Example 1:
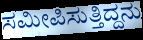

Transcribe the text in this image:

ಸಮೀಪಿಸುತ್ತಿದ್ದನು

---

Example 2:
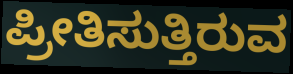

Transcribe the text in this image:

ಪ್ರೀತಿಸುತ್ತಿರುವ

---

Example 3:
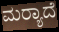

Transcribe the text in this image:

ಮರ‍್ಯಾದೆ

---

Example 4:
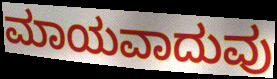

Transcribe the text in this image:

ಮಾಯವಾದುವು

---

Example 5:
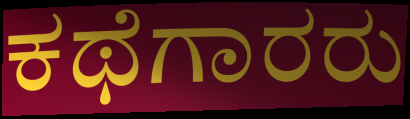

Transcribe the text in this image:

ಕಥೆಗಾರರು